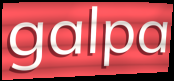
galpa